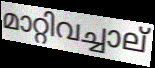
മാറ്റിവച്ചാല്